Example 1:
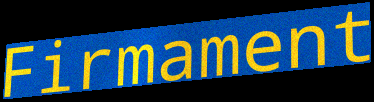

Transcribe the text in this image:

Firmament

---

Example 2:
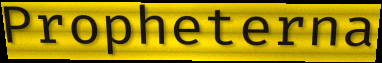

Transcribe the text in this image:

Propheterna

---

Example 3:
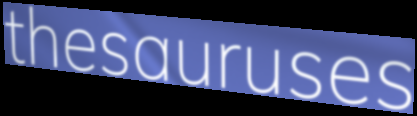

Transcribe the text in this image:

thesauruses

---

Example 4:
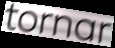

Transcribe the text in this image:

tornar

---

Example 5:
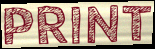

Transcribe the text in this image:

PRINT